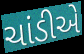
ચાંડીએ